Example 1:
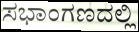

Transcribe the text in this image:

ಸಭಾಂಗಣದಲ್ಲಿ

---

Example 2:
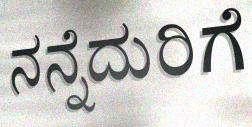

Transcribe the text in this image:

ನನ್ನೆದುರಿಗೆ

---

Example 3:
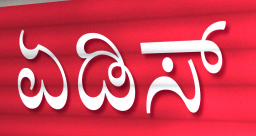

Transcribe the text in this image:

ಏಡಿಸ್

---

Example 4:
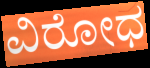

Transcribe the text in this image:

ವಿರೋಧ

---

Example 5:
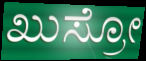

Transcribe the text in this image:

ಖುಸ್ರೋ